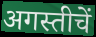
अगस्तीचें